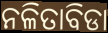
ନଳିତାବିଡା